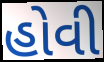
હોવી